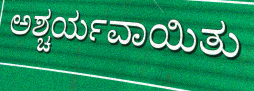
ಅಶ್ಚರ್ಯವಾಯಿತು